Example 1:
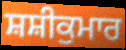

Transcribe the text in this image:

ਸ਼ਸ਼ੀਕੁਮਾਰ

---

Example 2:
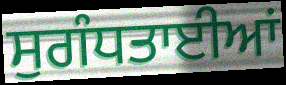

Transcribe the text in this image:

ਸੁਗੰਧਤਾਈਆਂ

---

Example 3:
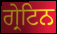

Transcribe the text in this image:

ਗ੍ਰੇਟਿਨ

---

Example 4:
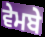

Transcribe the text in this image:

ਵੇਮਬੇ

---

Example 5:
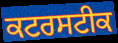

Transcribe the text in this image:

ਕਟਰਸਟੀਕ